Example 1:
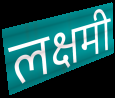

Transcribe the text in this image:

लक्षमी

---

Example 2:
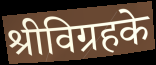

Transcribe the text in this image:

श्रीविग्रहके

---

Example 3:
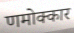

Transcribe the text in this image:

णमोक्कार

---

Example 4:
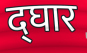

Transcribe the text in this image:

द्घार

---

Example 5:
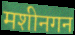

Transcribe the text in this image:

मशीनगन